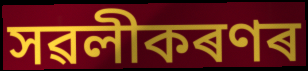
সৱলীকৰণৰ